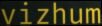
vizhum